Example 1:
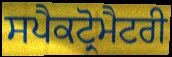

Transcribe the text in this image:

ਸਪੈਕਟ੍ਰੋਮੈਟਰੀ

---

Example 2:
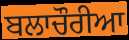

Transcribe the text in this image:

ਬਲਾਚੌਰੀਆ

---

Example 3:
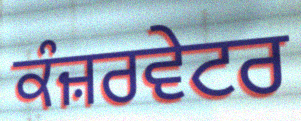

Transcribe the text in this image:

ਕੰਜ਼ਰਵੇਟਰ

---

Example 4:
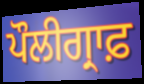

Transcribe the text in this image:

ਪੌਲੀਗ੍ਰਾਫ਼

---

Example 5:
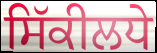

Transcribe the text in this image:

ਸਿੱਕੀਲਧੇ